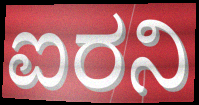
ಐರನಿ